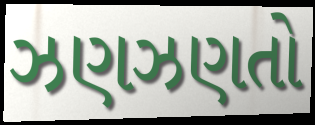
ઝણઝણતો